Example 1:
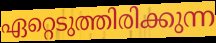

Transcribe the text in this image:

ഏറ്റെടുത്തിരിക്കുന്ന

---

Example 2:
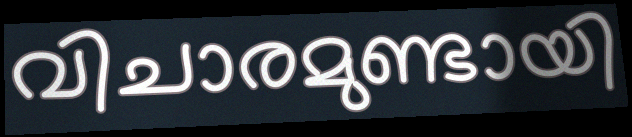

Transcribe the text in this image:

വിചാരമുണ്ടായി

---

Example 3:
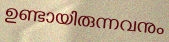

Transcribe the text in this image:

ഉണ്ടായിരുന്നവനും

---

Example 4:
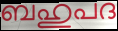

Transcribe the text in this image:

ബഹുപദ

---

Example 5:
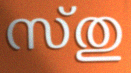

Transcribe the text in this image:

സ്‌തു